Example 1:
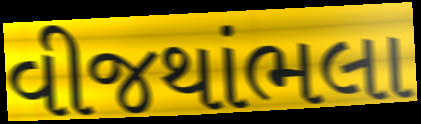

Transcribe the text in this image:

વીજથાંભલા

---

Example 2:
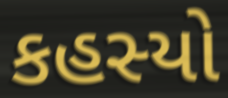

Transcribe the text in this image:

કહસ્યો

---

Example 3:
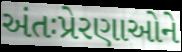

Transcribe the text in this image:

અંતઃપ્રેરણાઓને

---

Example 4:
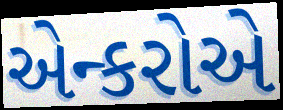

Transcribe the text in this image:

એન્કરોએ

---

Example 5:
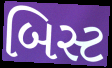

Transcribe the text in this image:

બિસ્ટ